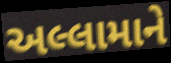
અલ્લામાને